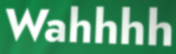
Wahhhh